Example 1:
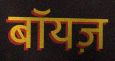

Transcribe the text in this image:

बॉयज़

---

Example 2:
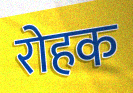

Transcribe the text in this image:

रोहक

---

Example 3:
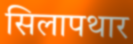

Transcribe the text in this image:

सिलापथार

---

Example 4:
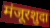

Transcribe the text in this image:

मंजूरशुदा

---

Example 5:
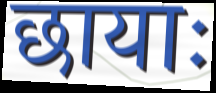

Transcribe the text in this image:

छायाः